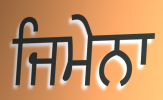
ਜਿਮੇਨਾ